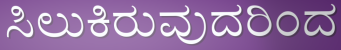
ಸಿಲುಕಿರುವುದರಿಂದ